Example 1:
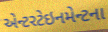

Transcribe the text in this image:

એન્ટરટેઇનમેન્ટના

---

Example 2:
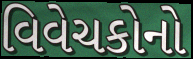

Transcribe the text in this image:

વિવેચકોનો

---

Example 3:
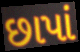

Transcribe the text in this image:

છાપાં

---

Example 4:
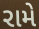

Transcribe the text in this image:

રામે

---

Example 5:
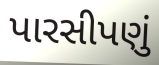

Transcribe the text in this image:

પારસીપણું